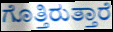
ಗೊತ್ತಿರುತ್ತಾರೆ